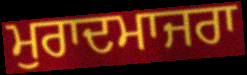
ਮੁਰਾਦਮਾਜਰਾ